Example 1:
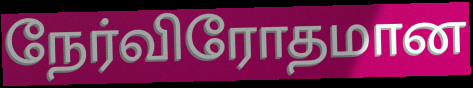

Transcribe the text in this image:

நேர்விரோதமான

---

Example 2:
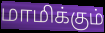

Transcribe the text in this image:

மாமிக்கும்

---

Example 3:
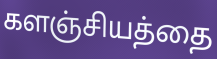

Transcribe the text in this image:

களஞ்சியத்தை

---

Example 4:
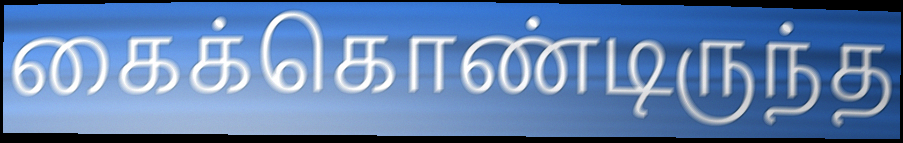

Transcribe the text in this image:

கைக்கொண்டிருந்த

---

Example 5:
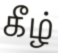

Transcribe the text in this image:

கீழ்